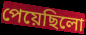
পেয়েছিলো